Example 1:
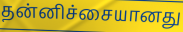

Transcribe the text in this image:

தன்னிச்சையானது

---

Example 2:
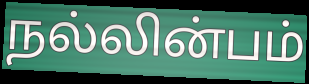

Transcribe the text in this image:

நல்லின்பம்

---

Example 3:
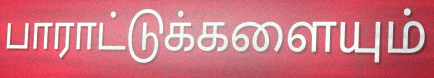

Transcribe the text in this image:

பாராட்டுக்களையும்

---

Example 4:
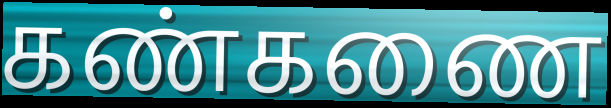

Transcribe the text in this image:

கண்கணை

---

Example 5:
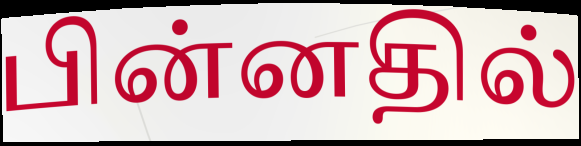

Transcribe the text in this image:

பின்னதில்